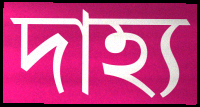
দাহ্য